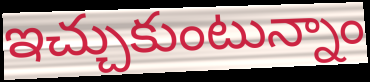
ఇచ్చుకుంటున్నాం